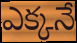
ఎక్కనే